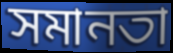
সমানতা